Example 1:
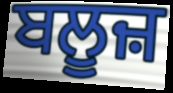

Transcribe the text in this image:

ਬਲੂਜ਼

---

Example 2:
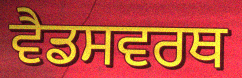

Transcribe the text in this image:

ਵੈਡਸਵਰਥ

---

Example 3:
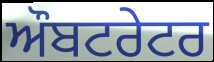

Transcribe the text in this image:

ਔਬਟਰੇਟਰ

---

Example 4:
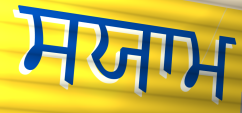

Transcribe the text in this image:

ਸਯਾਮ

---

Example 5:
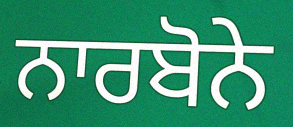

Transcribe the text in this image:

ਨਾਰਬੋਨੇ